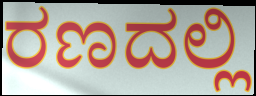
ರಣದಲ್ಲಿ